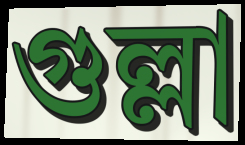
গুল্লা